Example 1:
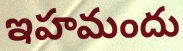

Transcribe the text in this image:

ఇహమందు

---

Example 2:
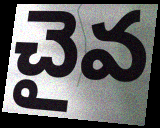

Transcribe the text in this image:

చైవ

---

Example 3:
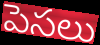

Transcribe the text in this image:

పెసలు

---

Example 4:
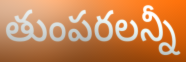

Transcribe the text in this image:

తుంపరలన్నీ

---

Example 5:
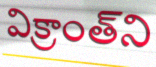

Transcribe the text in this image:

విక్రాంత్‌ని